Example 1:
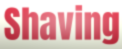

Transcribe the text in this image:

Shaving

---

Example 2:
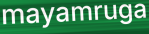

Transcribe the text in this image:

mayamruga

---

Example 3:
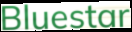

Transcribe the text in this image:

Bluestar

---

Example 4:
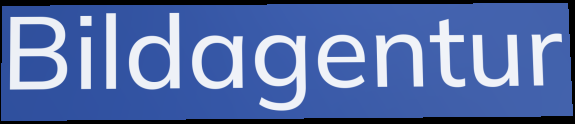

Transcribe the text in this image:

Bildagentur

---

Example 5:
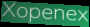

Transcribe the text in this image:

Xopenex